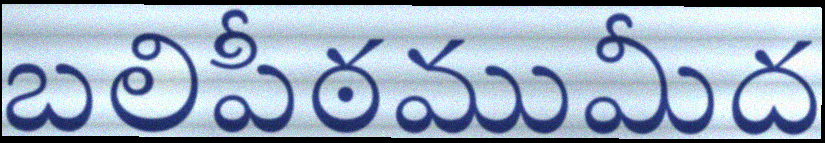
బలిపీఠముమీద